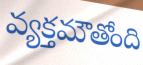
వ్యక్తమౌతోంది